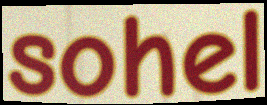
sohel